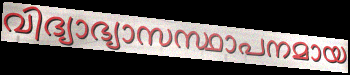
വിദ്യാഭ്യാസസ്ഥാപനമായ